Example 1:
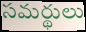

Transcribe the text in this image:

సమర్థులు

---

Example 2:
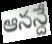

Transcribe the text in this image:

ఆనన్దే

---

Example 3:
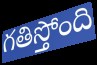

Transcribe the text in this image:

గతిస్తోంది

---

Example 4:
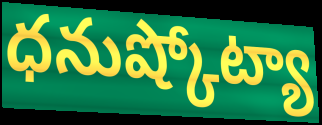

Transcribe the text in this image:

ధనుష్కోట్యా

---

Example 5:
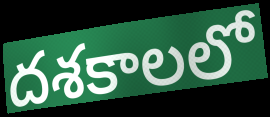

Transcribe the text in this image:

దశకాలలో